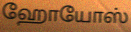
ஹோயோஸ்